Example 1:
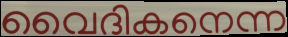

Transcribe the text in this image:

വൈദികനെന്ന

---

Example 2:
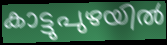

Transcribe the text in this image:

കാട്ടുപുഴയിൽ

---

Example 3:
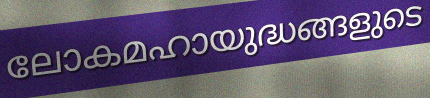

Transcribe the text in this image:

ലോകമഹായുദ്ധങ്ങളുടെ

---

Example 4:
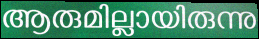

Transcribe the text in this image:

ആരുമില്ലായിരുന്നു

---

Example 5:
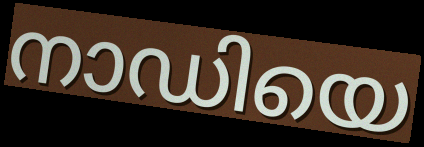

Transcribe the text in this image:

നാഡിയെ